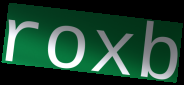
roxb